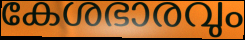
കേശഭാരവും